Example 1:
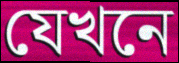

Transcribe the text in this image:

যেখনে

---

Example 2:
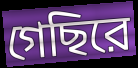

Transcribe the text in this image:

গেছিরে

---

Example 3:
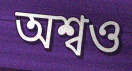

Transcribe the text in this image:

অশ্বও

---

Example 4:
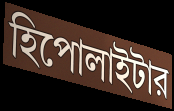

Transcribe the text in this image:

হিপোলাইটার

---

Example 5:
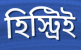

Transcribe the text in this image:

হিস্ট্রিই